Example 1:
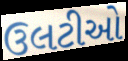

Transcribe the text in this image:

ઉલટીઓ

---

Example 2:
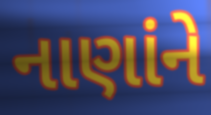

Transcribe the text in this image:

નાણાંને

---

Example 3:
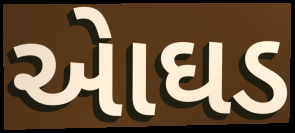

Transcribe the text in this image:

એાઘડ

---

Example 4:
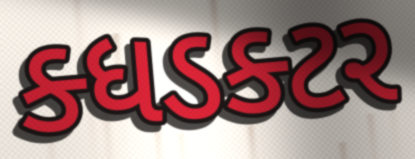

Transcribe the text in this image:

ક્ધડક્ટર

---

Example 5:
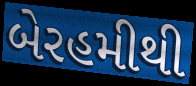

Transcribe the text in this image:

બેરહમીથી